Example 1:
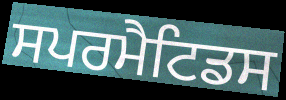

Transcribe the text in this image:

ਸਪਰਮੈਟਿਡਸ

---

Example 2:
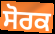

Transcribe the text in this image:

ਸੋਰਕ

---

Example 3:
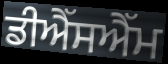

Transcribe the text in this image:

ਡੀਐੱਸਐੱਮ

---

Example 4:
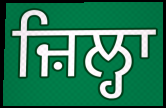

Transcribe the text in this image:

ਜ਼ਿਲ੍ਹ੍ਹਾ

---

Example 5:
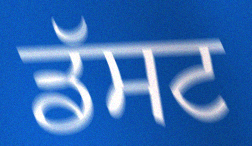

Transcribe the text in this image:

ਡੱਸਟ